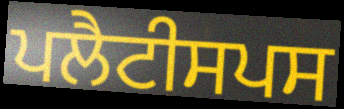
ਪਲੈਟੀਸਪਸ